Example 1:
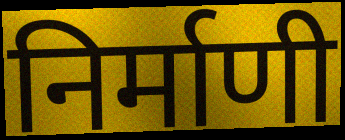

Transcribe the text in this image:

निर्माणी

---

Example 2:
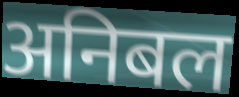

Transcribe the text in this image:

अनिबल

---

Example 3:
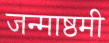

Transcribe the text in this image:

जन्माष्ठमी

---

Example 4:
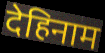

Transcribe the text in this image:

देहिनाम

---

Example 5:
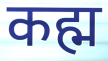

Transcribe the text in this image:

कह्म